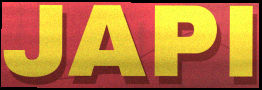
JAPI